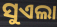
ସୁଏଲା